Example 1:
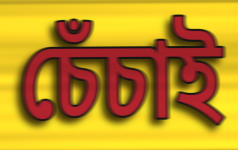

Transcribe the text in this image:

চেঁচাই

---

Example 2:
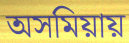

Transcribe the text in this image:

অসমিয়ায়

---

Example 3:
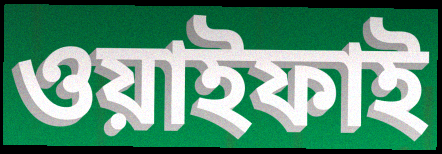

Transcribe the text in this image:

ওয়াইফাই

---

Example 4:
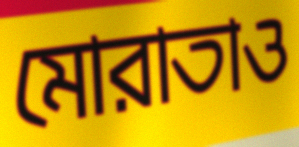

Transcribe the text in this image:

মোরাতাও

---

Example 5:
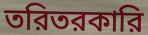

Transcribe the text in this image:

তরিতরকারি